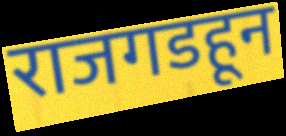
राजगडहून